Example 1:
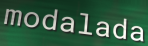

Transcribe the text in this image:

modalada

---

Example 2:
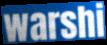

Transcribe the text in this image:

warshi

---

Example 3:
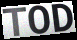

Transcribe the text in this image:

TOD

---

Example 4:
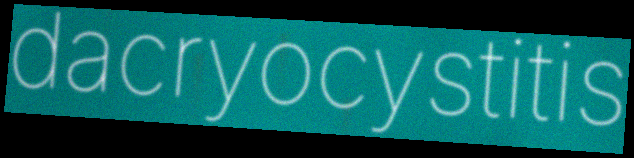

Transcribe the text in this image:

dacryocystitis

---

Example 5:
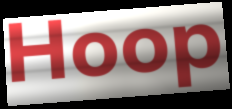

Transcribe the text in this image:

Hoop